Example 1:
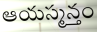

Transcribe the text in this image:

ఆయస్మన్తం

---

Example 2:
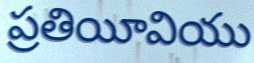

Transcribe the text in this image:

ప్రతియీవియు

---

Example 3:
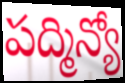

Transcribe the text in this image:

పద్మిన్యో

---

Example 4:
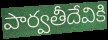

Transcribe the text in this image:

పార్వతీదేవికి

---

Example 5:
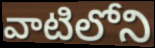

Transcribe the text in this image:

వాటిలోని